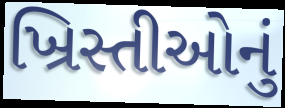
ખ્રિસ્તીઓનું